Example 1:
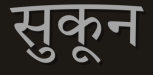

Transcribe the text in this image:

सुकून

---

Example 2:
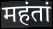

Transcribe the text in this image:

महंतां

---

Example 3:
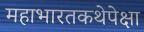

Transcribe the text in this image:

महाभारतकथेपेक्षा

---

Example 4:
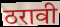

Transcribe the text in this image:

ठरावी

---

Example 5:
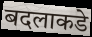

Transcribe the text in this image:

बदलाकडे